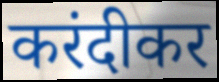
करंदीकर